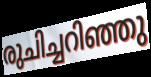
രുചിച്ചറിഞ്ഞു